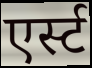
एर्स्ट